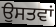
ਉਸਤਵਾਂ